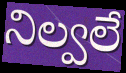
నిల్వలే